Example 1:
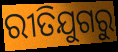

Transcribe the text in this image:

ରୀତିଯୁଗରୁ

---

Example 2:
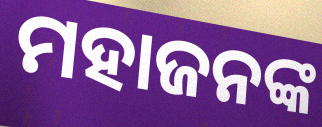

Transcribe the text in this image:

ମହାଜନଙ୍କ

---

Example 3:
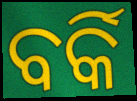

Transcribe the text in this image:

ବର୍କି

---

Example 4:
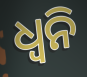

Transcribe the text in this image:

ଧ୍ବନି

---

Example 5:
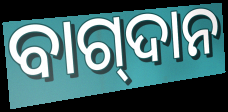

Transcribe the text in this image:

ବାଗ୍‍ଦାନ